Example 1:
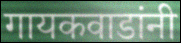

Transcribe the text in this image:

गायकवाडांनी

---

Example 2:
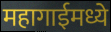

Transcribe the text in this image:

महागाईमध्ये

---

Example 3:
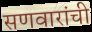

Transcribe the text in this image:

सणवारांची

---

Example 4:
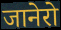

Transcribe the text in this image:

जानेरो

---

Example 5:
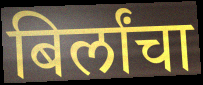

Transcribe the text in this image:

बिर्लांचा